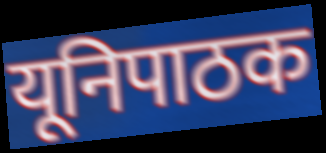
यूनिपाठक